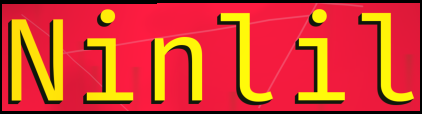
Ninlil